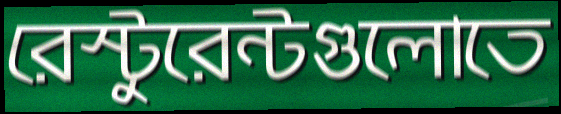
রেস্টুরেন্টগুলোতে